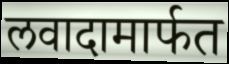
लवादामार्फत